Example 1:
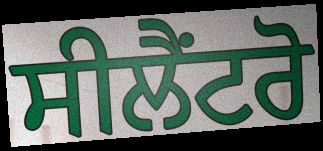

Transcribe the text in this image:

ਸੀਲੈਂਟਰੋ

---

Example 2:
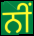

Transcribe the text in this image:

ਨੀਂ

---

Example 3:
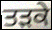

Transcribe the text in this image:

ਤੜਕੇ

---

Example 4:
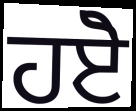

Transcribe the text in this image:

ਹਏੋ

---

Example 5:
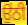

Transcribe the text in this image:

ਉਂਠੀ